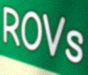
ROVs